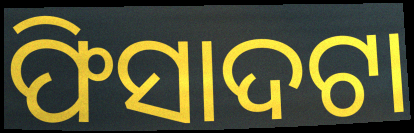
ଫିସାଦଟା